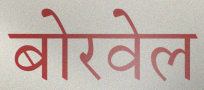
बोरवेल